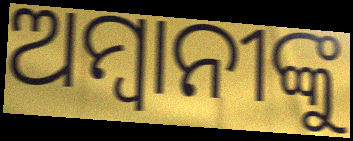
ଅମ୍ବାନୀଙ୍କୁ